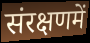
संरक्षणमें